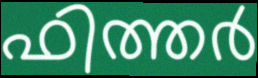
ഫിത്തർ